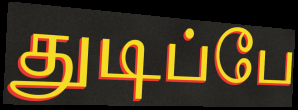
துடிப்பே